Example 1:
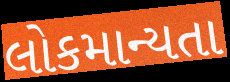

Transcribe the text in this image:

લોકમાન્યતા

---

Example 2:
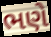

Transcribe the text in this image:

ભણે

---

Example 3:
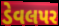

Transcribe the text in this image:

ડેવલપર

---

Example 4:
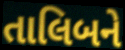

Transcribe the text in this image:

તાલિબને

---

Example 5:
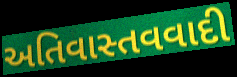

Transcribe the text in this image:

અતિવાસ્તવવાદી